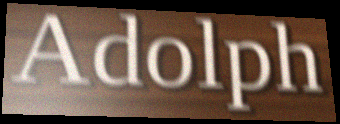
Adolph